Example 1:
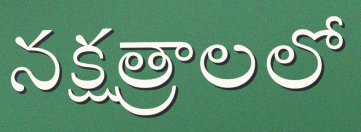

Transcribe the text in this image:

నక్షత్రాలలో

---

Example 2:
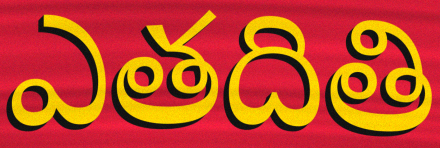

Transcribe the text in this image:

ఎతదితి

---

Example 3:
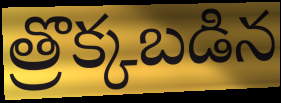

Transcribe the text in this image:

త్రొక్కబడిన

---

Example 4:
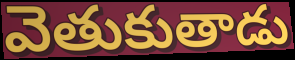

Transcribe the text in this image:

వెతుకుతాడు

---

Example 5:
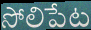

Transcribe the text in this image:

సోలిపేట